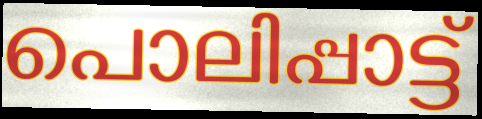
പൊലിപ്പാട്ട്